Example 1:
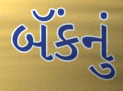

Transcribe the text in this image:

બૅંકનું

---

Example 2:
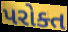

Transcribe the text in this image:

પરોક્ત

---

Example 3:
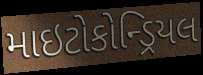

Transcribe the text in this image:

માઇટોકોન્ડ્રિયલ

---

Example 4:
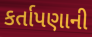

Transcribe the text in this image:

કર્તાપણાની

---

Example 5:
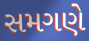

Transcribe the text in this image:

સમગણે